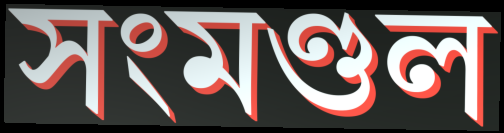
সংমণ্ডল